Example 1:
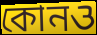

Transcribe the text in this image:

কোনও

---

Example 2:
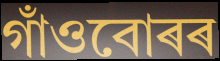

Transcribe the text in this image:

গাঁওবোৰৰ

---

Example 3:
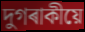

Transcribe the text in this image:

দুগৰাকীয়ে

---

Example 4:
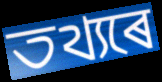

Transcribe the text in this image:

তথ্যৰে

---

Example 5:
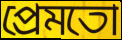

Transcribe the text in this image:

প্ৰেমতো